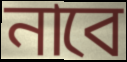
নাবে